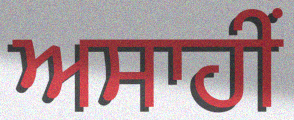
ਅਸਾਹੀਂ